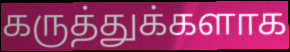
கருத்துக்களாக